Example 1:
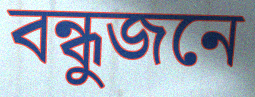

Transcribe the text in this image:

বন্ধুজনে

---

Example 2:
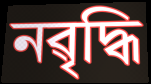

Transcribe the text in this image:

নৱৃদ্ধি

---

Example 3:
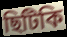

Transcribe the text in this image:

ছিটিকি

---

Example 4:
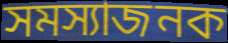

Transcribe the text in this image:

সমস্যাজনক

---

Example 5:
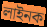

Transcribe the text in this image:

লাইনক